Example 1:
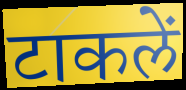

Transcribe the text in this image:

टाकलें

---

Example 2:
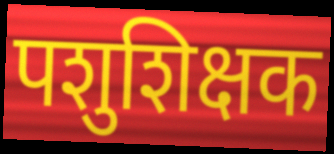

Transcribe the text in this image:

पशुशिक्षक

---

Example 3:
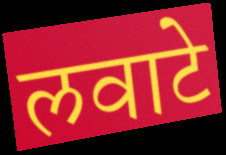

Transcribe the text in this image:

लवाटे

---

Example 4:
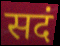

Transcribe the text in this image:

सदं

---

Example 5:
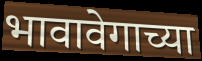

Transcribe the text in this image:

भावावेगाच्या